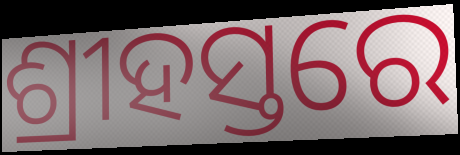
ଶ୍ରୀହସ୍ତରେ